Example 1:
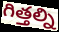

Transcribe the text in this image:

గిత్తల్ని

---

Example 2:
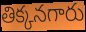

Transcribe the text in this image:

తిక్కనగారు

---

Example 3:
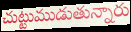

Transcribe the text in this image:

చుట్టుముడుతున్నారు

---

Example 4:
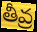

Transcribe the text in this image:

తీవ్ర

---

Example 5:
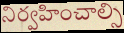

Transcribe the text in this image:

నిర్వహించాల్సి